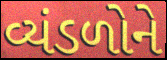
વ્યંડળોને